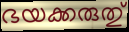
ഭയക്കരുതു്